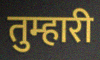
तुम्‍हारी